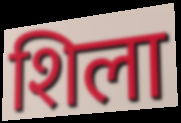
शिला